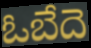
ఓబేదె